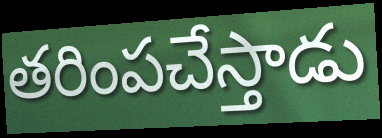
తరింపచేస్తాడు